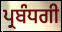
ਪ੍ਰਬੰਧਗੀ